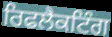
ਰਿਫਲੈਕਟਿੰਗ